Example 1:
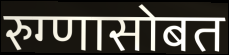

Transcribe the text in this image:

रुग्णासोबत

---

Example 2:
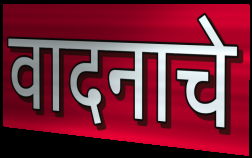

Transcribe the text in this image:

वादनाचे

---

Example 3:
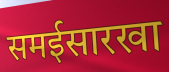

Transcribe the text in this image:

समईसारखा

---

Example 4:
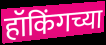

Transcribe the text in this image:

हॉकिंगच्या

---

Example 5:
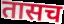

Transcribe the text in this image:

तासच